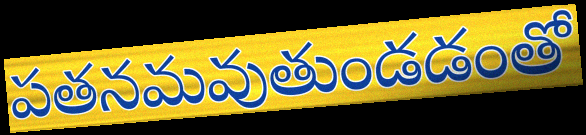
పతనమవుతుండడంతో